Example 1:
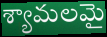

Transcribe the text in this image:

శ్యామలమై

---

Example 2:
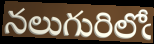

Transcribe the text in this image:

నలుగురిలోఁ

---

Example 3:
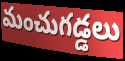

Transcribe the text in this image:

మంచుగడ్డలు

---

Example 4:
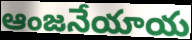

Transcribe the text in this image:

ఆంజనేయాయ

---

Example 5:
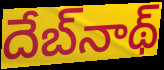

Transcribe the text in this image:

దేబ్‌నాథ్